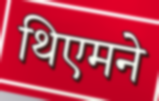
थिएमने